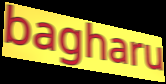
bagharu